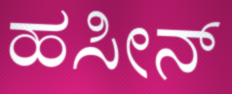
ಹಸೀನ್